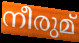
നീരുമ്